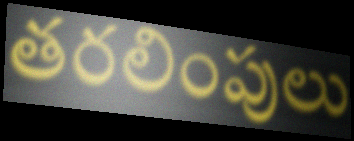
తరలింపులు